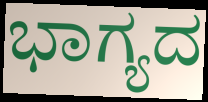
ಭಾಗ್ಯದ